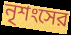
নৃশংসের